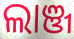
ଲାଞ୍ଜ